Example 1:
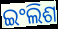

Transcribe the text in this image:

ଇଂଲିଶ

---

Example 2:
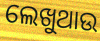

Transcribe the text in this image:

ଲେଖୁଥାଉ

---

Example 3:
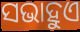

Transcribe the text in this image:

ସଭାହୁଏ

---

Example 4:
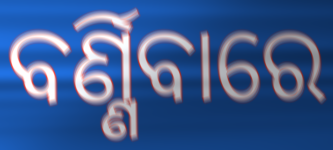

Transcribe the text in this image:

ବର୍ଣ୍ଣିବାରେ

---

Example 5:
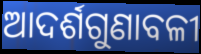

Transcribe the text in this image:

ଆଦର୍ଶଗୁଣାବଳୀ